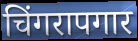
चिंगरापगार